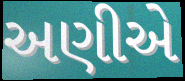
અણીએ